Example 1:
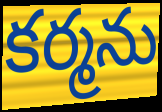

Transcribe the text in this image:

కర్మను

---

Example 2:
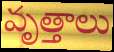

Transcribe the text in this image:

వృత్తాలు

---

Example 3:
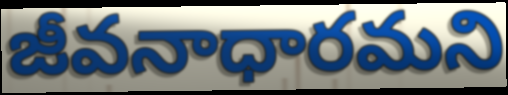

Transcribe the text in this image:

జీవనాధారమని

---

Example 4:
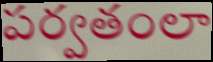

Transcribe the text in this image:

పర్వతంలా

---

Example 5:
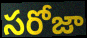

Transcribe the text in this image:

సరోజా